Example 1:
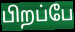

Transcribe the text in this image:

பிறப்பே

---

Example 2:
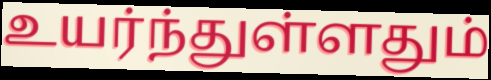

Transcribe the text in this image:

உயர்ந்துள்ளதும்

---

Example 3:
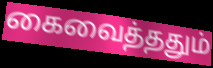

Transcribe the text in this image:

கைவைத்ததும்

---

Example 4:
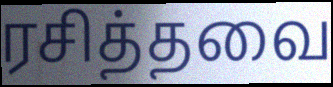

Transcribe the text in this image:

ரசித்தவை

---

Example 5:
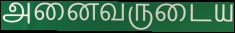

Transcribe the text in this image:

அனைவருடைய